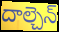
దాల్చెన్